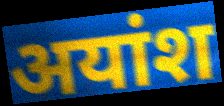
अयांश